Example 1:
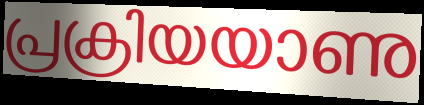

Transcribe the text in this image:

പ്രക്രിയയാണു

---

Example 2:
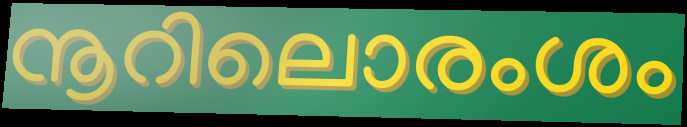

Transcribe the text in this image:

നൂറിലൊരംശം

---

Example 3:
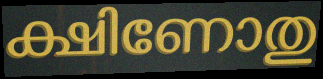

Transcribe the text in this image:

ക്ഷിണോതു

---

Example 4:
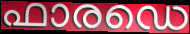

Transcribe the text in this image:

ഫാരഡെ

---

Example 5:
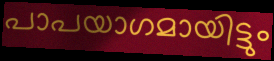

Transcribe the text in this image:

പാപയാഗമായിട്ടും